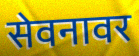
सेवनावर